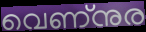
വെണ്നുര